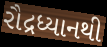
રૌદ્રધ્યાનથી